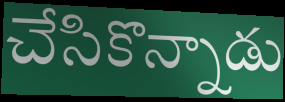
చేసికొన్నాడు